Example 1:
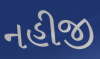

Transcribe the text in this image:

નહીજી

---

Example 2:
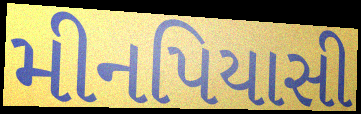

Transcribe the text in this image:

મીનપિયાસી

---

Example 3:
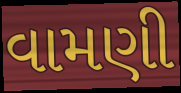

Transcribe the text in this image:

વામણી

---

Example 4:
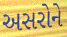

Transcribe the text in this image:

અસરોને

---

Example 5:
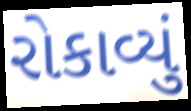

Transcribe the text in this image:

રોકાવ્યું